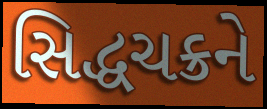
સિદ્ધચક્રને